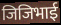
जिजिभाई